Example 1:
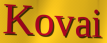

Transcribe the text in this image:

Kovai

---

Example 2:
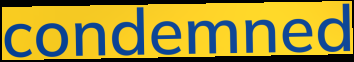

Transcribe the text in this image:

condemned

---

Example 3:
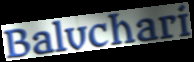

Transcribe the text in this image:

Baluchari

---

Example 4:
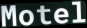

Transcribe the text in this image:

Motel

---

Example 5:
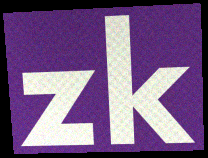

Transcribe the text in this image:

zk